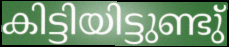
കിട്ടിയിട്ടുണ്ടു്